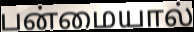
பன்மையால்